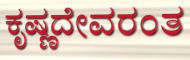
ಕೃಷ್ಣದೇವರಂತ